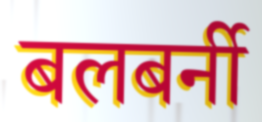
बलबर्नी